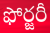
ఫోర్జరీ